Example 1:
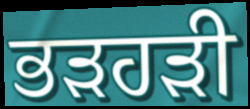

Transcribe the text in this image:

ਭੜਹੜੀ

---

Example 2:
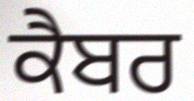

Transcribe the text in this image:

ਕੈਬਰ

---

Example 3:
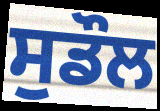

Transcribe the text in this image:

ਸੁਡੌਲ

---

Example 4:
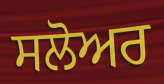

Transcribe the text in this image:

ਸਲੋਅਰ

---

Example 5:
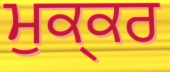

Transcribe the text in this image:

ਮੁਕ੍ਕਰ